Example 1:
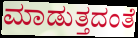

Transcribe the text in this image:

ಮಾಡುತ್ತದಂತೆ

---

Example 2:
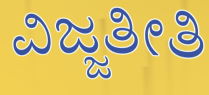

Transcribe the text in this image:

ವಿಜ್ಜತೀತಿ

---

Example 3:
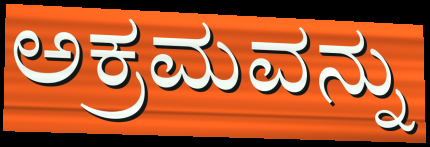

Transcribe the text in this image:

ಅಕ್ರಮವನ್ನು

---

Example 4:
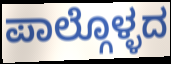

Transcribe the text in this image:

ಪಾಲ್ಗೊಳ್ಳದ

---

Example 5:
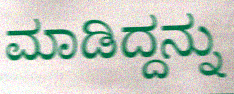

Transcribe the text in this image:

ಮಾಡಿದ್ದನ್ನು